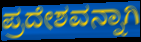
ಪ್ರದೇಶವನ್ನಾಗಿ